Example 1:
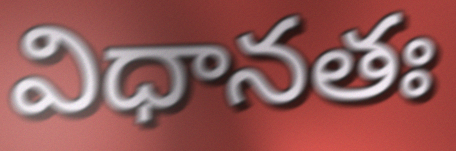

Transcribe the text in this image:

విధానతః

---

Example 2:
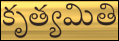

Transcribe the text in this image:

కృత్యమితి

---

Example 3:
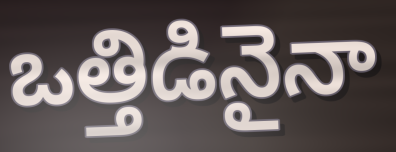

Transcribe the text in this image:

ఒత్తిడినైనా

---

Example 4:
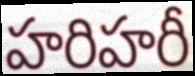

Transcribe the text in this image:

హరిహరీ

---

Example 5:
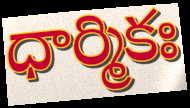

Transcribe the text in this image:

ధార్మికః